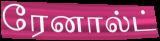
ரேனால்ட்